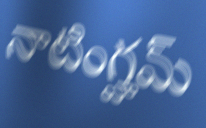
నాటింగ్హమ్